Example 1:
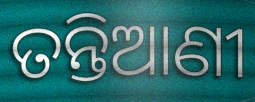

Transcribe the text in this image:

ତନ୍ତିଆଣୀ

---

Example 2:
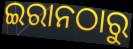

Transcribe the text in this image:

ଇରାନଠାରୁ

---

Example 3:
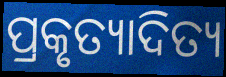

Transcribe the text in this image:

ପ୍ରକୃତ୍ୟାଦିତ୍ୟ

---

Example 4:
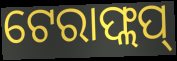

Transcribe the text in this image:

ଟେରାଫ୍ଲପ୍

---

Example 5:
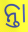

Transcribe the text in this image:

ନ୍ତା